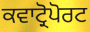
ਕਵਾਟ੍ਰੋਪੋਰਟ